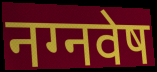
नग्नवेष